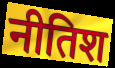
नीतिश